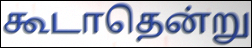
கூடாதென்று